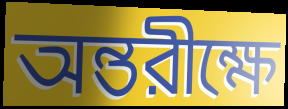
অন্তরীক্ষে